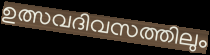
ഉത്സവദിവസത്തിലും